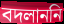
বদলাননি